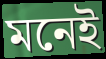
মনেই